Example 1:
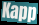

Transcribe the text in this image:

Kapp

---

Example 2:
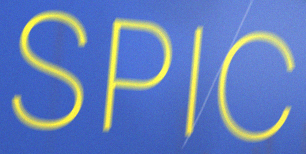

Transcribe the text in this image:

SPIC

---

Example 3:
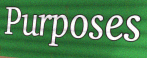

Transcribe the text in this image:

Purposes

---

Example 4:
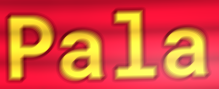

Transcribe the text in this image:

Pala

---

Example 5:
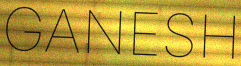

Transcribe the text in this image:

GANESH